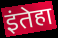
इंतेहा